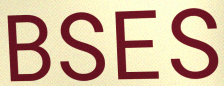
BSES